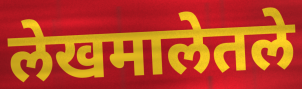
लेखमालेतले